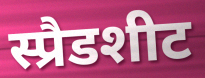
स्प्रैडशीट